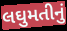
લઘુમતીનું